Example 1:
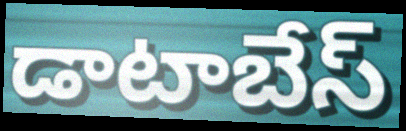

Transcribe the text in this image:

డాటాబేస్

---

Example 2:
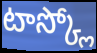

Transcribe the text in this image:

టాస్క్లో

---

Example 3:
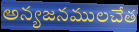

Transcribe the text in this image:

అన్యజనములచేత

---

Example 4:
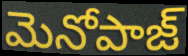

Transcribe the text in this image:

మెనోపాజ్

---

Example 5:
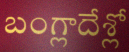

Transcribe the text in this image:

బంగ్లాదేశ్లో